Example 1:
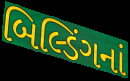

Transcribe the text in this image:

બિલ્ડિંગનાં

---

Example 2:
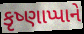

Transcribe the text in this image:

કૃષ્ણાપ્પાને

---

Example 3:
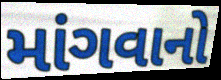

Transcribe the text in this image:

માંગવાનો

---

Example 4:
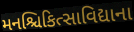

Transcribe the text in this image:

મનશ્ચિકિત્સાવિદ્યાના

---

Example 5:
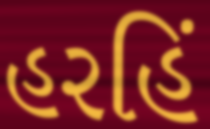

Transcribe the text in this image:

હરહિં